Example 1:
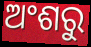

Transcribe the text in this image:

ଅଂଶରୁ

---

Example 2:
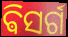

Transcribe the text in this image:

ଵିସର୍ଗ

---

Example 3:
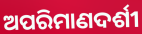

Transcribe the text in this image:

ଅପରିମାଣଦର୍ଶୀ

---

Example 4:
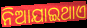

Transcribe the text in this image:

ନିଆଯାଇଥାଏ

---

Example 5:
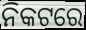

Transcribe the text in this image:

ନିକଟରେ